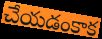
చేయడంకాక